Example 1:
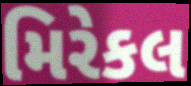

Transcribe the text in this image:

મિરેકલ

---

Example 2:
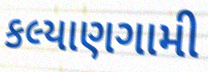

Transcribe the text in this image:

કલ્યાણગામી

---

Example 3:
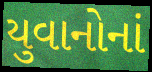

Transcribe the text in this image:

યુવાનોનાં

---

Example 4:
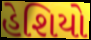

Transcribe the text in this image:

હેશિયો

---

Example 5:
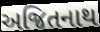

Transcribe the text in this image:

અજિતનાથ